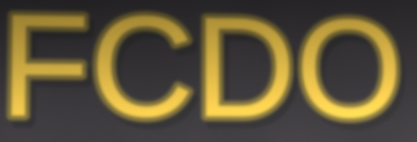
FCDO